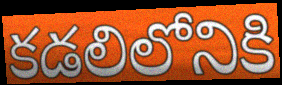
కడలిలోనికి